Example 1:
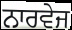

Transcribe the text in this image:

ਨਾਰਵੇਜ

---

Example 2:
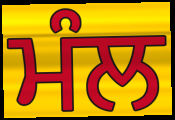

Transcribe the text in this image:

ਮੰਲ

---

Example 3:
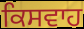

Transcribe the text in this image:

ਕਿਸਵਾਹ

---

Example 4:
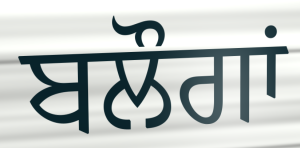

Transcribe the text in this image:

ਬਲੌਗਾਂ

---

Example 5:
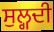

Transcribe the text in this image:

ਸੁਲ੍ਗਦੀ